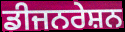
ਡੀਜਨਰੇਸ਼ਨ